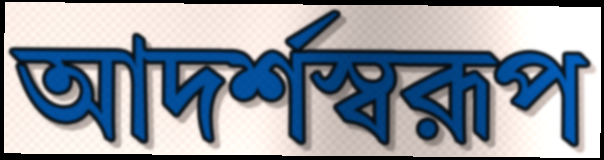
আদর্শস্বরূপ